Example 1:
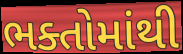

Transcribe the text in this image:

ભક્તોમાંથી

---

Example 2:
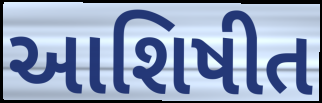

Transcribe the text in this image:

આશિષીત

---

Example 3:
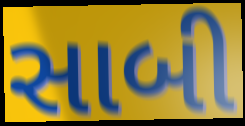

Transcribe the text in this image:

સાબી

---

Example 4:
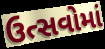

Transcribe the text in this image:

ઉત્સવોમાં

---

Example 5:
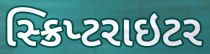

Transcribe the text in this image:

સ્ક્રિપ્ટરાઇટર